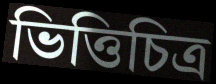
ভিত্তিচিত্র